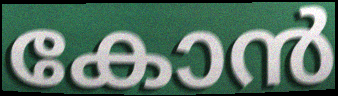
കോൻ